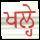
ਖਲ੍ਹੇ